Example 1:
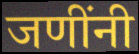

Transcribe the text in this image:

जणींनी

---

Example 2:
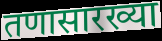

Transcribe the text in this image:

तणासारख्या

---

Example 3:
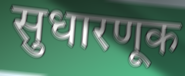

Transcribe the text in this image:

सुधारणूक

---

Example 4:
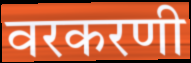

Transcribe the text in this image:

वरकरणी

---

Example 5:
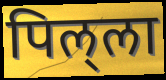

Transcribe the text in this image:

पिल्ला